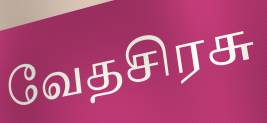
வேதசிரசு